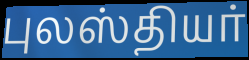
புலஸ்தியர்